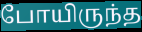
போயிருந்த